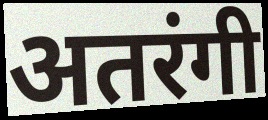
अतरंगी